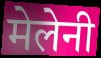
मेलेनी